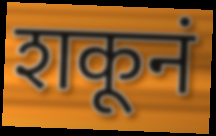
शकूनं